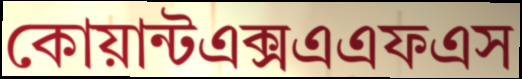
কোয়ান্টএক্সএএফএস